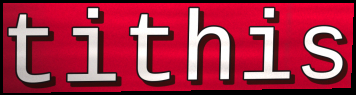
tithis